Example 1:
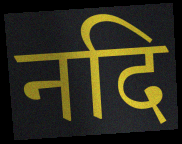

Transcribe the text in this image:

नदि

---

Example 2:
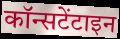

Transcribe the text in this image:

कॉन्सटेंटाइन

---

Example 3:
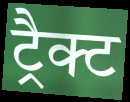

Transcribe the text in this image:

ट्रैक्ट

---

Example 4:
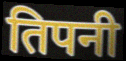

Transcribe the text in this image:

तिपनी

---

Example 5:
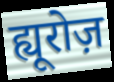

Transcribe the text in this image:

ह्यूरोज़